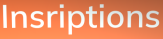
Insriptions